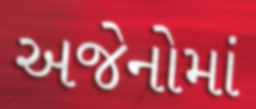
અજેનોમાં